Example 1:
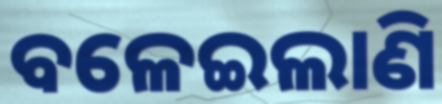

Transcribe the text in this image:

ବଳେଇଲାଣି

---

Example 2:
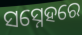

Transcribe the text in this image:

ସସ୍ନେହରେ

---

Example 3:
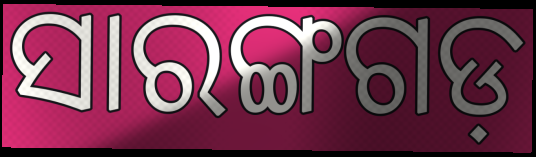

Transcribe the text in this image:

ସାରଙ୍ଗଗଡ଼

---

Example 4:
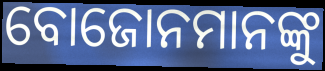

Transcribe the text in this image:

ବୋଜୋନମାନଙ୍କୁ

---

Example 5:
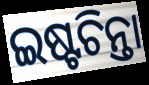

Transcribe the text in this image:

ଇଷ୍ଟଚିନ୍ତା